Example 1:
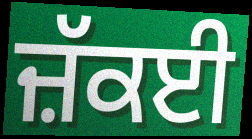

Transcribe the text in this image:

ਜ਼ੱਕਈ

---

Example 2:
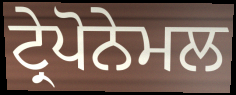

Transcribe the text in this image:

ਟ੍ਰੇਪੋਨੇਮਲ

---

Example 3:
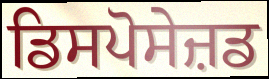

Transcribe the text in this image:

ਡਿਸਪੋਸੇਜ਼ਡ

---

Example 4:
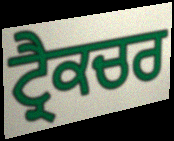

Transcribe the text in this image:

ਟ੍ਰੈਕਚਰ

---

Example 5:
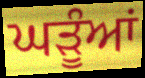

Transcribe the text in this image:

ਘੜੂੰਆਂ